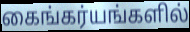
கைங்கர்யங்களில்